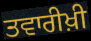
ਤਵਾਰੀਖ਼ੀ